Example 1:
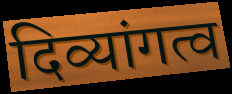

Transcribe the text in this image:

दिव्यांगत्व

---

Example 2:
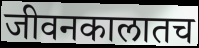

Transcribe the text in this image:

जीवनकालातच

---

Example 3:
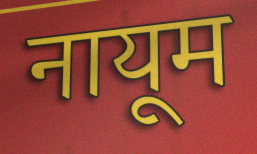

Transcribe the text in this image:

नायूम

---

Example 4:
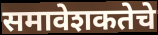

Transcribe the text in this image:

समावेशकतेचे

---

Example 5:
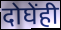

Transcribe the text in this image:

दोघेंही